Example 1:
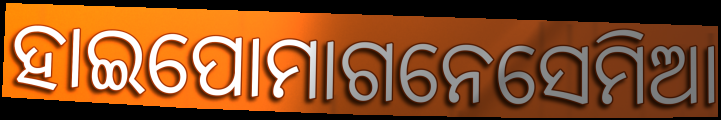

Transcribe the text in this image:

ହାଇପୋମାଗନେସେମିଆ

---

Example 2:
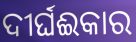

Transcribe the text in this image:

ଦୀର୍ଘଈକାର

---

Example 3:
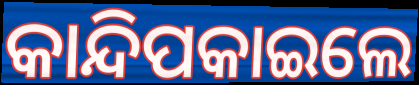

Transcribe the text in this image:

କାନ୍ଦିପକାଇଲେ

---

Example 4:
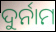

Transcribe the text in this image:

ଦୁର୍ନାମ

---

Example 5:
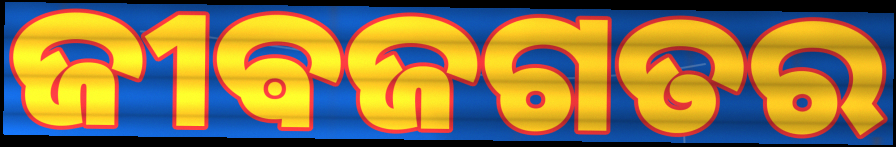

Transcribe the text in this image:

ଜୀଵଜଗତର